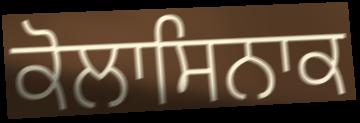
ਕੋਲਾਸਿਨਾਕ